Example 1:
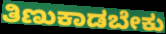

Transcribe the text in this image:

ತಿಣುಕಾಡಬೇಕು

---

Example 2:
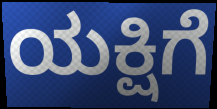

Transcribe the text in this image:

ಯಕ್ಷಿಗೆ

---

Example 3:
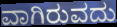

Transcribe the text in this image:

ವಾಗಿರುವದು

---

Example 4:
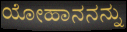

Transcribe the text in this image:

ಯೋಹಾನನನ್ನು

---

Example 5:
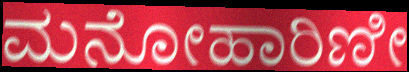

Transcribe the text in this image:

ಮನೋಹಾರಿಣೀ